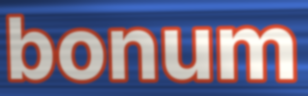
bonum